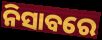
ନିସାବରେ